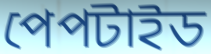
পেপটাইড